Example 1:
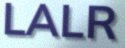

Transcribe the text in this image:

LALR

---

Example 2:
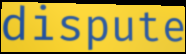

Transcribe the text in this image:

dispute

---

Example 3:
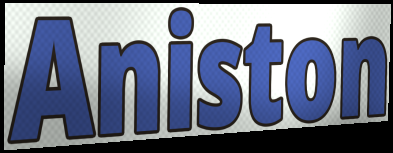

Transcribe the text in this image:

Aniston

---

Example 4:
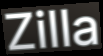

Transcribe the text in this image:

Zilla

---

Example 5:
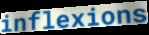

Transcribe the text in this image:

inflexions